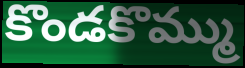
కొండకొమ్ము